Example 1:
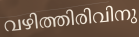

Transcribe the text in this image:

വഴിത്തിരിവിനു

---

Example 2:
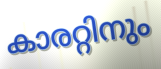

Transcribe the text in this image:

കാരറ്റിനും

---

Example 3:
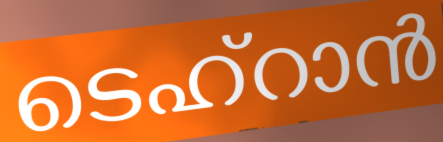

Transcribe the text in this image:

ടെഹ്റാൻ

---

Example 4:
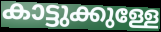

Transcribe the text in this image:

കാട്ടുക്കുള്ളേ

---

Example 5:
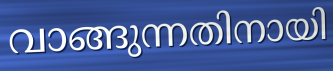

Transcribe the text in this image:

വാങ്ങുന്നതിനായി